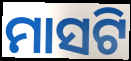
ମାସଟି